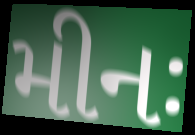
મીનઃ